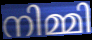
നിമ്മി